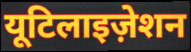
यूटिलाइज़ेशन